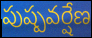
పుష్పవర్షేణ